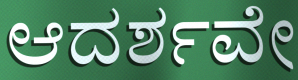
ಆದರ್ಶವೇ